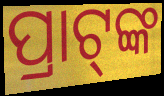
ପ୍ରାଟ୍‍ଙ୍କ